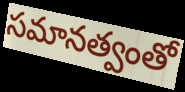
సమానత్వంతో